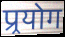
प्र्रयोग